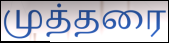
முத்தரை